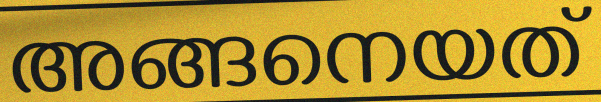
അങ്ങനെയത്